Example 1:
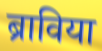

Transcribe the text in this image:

ब्राविया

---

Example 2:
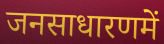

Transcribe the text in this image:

जनसाधारणमें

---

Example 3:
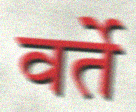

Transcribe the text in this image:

वर्ते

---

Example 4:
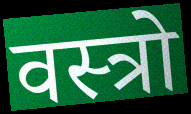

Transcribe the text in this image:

वस्त्रो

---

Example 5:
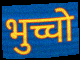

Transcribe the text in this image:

भुच्चो